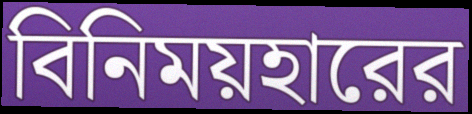
বিনিময়হারের